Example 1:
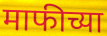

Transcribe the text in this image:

माफीच्या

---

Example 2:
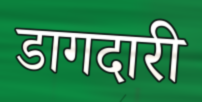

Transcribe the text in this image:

डागदारी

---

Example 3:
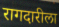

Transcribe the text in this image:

रागदारीला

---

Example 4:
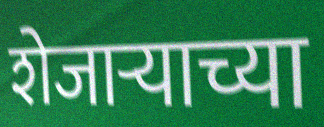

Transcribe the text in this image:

शेजार्‍याच्या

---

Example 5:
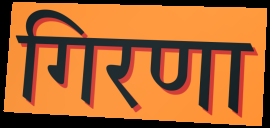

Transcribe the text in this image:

गिरणा